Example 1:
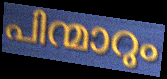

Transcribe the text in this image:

പിന്മാറും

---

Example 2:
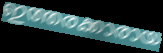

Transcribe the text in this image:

ഇത്തരക്കാരായ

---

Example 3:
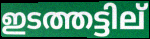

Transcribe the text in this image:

ഇടത്തട്ടില്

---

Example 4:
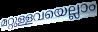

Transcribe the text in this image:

മറ്റുള്ളവയെല്ലാം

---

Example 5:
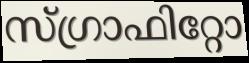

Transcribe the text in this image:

സ്ഗ്രാഫിറ്റോ